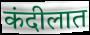
कंदीलात